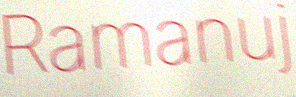
Ramanuj